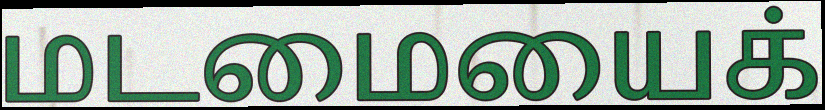
மடமையைக்